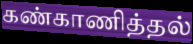
கண்காணித்தல்